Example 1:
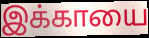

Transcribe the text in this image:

இக்காயை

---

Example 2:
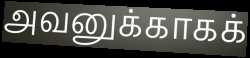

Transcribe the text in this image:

அவனுக்காகக்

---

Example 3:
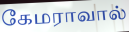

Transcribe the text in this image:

கேமராவால்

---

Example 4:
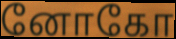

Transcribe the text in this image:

னோகோ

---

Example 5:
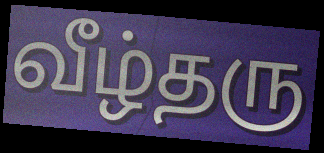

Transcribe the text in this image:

வீழ்தரு